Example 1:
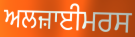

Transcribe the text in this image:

ਅਲਜ਼ਾਈਮਰਸ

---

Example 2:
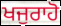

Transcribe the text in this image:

ਖਜੁਰਾਹੋ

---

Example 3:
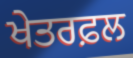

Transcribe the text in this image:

ਖੇਤਰਫ਼ਲ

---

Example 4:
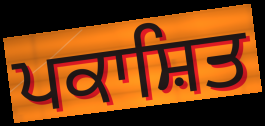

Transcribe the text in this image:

ਪਕਾਸ਼ਿਤ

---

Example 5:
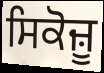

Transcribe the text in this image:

ਸਿਕੋਜ਼ੂ